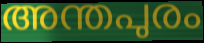
അന്തപുരം